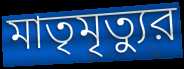
মাতৃমৃত্যুর